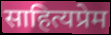
साहित्यप्रेम